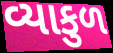
વ્યાકુળ